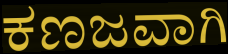
ಕಣಜವಾಗಿ